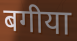
बगीया